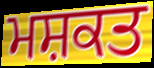
ਮਸ਼ਕਤ